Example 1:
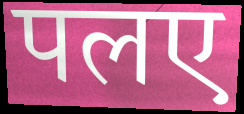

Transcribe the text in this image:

पलए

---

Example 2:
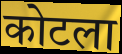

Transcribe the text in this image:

कोटला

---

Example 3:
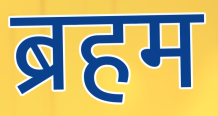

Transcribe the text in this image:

ब्रहम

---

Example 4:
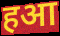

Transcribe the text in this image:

हआ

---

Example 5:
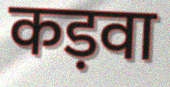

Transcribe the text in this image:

कड़वा